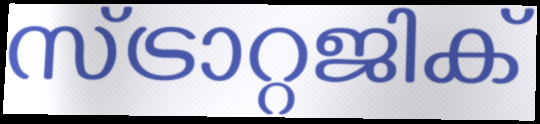
സ്ട്രാറ്റജിക്